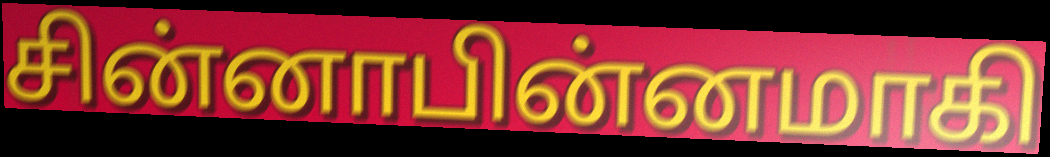
சின்னாபின்னமாகி